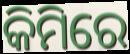
କିମିରେ